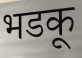
भडकू